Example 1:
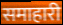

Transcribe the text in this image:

समाहारी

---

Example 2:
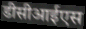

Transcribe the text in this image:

डीसीआईएस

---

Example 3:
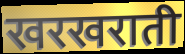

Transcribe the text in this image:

खरखराती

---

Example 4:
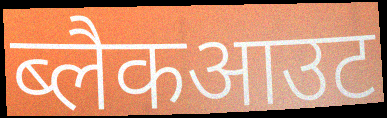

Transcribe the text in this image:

ब्लैकआउट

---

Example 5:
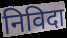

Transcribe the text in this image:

निविदा